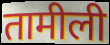
तामीली